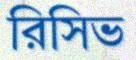
রিসিভ